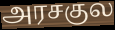
அரசகுல